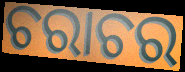
ଚରାଚର